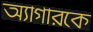
অ্যাগারকে